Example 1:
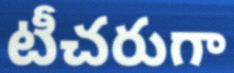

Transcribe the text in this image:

టీచరుగా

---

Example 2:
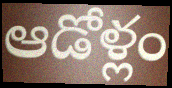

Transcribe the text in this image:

ఆడోళ్లం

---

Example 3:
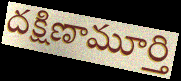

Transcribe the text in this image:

దక్షిణామూర్తి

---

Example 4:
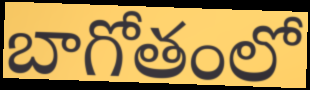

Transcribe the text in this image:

బాగోతంలో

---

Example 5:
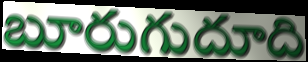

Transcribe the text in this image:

బూరుగుదూది